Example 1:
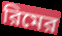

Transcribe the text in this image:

রিমের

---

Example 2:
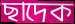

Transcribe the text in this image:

ছাদেক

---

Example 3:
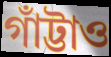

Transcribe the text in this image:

গাঁট্টাও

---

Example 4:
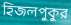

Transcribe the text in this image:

হিজলপুকুর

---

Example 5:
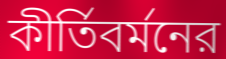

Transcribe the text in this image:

কীর্তিবর্মনের